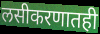
लसीकरणातही